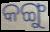
କଙ୍ଗୁ